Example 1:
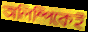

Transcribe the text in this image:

অলিম্পিকেই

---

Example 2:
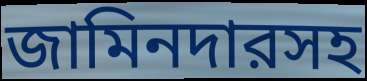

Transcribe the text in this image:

জামিনদারসহ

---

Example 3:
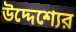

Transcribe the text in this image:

উদ্দেশ্যের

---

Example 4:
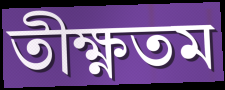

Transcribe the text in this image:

তীক্ষ্ণতম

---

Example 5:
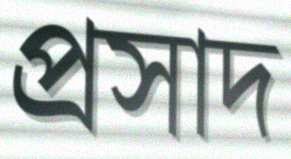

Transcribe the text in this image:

প্রসাদ